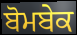
ਬੋਮਬੇਕ